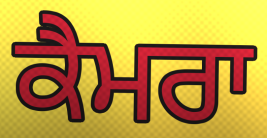
ਕੈਮਰਾ